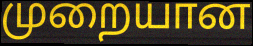
முறையான